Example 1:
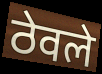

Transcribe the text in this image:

ठेवले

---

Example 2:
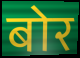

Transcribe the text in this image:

बोर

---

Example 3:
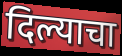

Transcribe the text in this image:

दिल्याचा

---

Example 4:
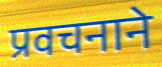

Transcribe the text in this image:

प्रवचनाने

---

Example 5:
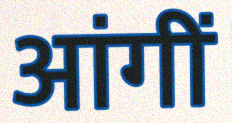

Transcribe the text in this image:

आंगीं